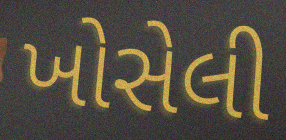
ખોસેલી